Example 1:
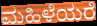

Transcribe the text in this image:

ಮಹಿಳೆಯರೆ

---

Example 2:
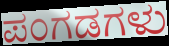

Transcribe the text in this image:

ಪಂಗಡಗಳು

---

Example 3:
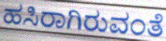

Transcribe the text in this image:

ಹಸಿರಾಗಿರುವಂತೆ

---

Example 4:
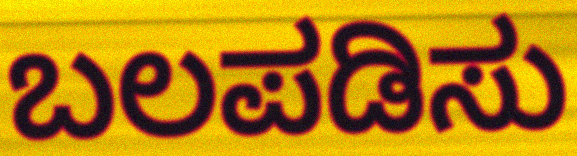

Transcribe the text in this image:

ಬಲಪಡಿಸು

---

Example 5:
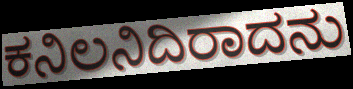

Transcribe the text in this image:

ಕನಿಲನಿದಿರಾದನು